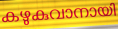
കഴുകുവാനായി